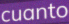
cuanto